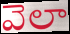
వెలా